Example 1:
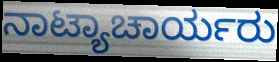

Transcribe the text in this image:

ನಾಟ್ಯಾಚಾರ್ಯರು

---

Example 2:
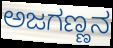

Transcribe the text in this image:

ಅಜಗಣ್ಣನ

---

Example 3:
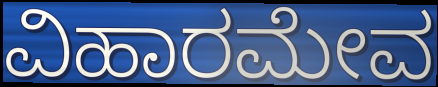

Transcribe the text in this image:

ವಿಹಾರಮೇವ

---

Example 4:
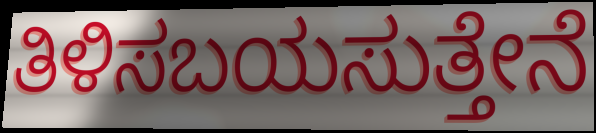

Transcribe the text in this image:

ತಿಳಿಸಬಯಸುತ್ತೇನೆ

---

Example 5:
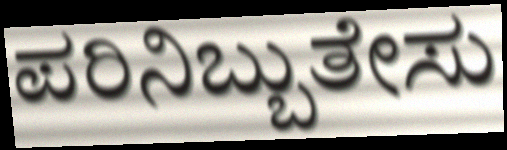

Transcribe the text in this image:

ಪರಿನಿಬ್ಬುತೇಸು